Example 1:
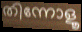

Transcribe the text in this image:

തിന്നോളൂ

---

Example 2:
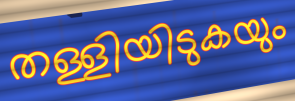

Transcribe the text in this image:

തള്ളിയിടുകയും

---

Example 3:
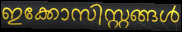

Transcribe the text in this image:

ഇക്കോസിസ്റ്റങ്ങൾ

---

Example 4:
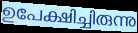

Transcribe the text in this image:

ഉപേക്ഷിച്ചിരുന്നു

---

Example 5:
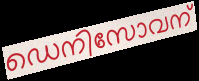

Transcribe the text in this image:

ഡെനിസോവന്